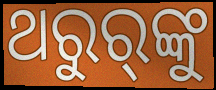
ଥରୁର୍‌ଙ୍କୁ